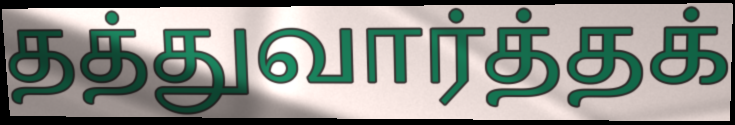
தத்துவார்த்தக்